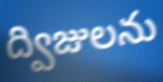
ద్విజులను